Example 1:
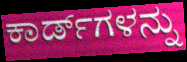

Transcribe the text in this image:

ಕಾರ್ಡ್‌ಗಳನ್ನು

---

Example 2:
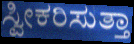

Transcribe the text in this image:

ಸ್ವೀಕರಿಸುತ್ತಾ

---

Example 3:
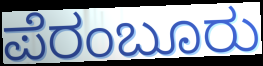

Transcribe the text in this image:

ಪೆರಂಬೂರು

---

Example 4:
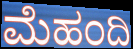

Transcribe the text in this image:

ಮೆಹಂದಿ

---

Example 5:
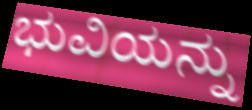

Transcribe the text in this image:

ಭುವಿಯನ್ನು